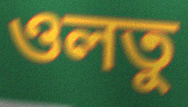
ওলতু